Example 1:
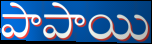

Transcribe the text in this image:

పాపాయి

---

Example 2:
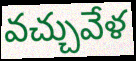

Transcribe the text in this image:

వచ్చువేళ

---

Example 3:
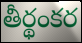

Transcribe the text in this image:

తీర్థంకర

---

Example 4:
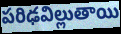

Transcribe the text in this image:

పరిఢవిల్లుతాయి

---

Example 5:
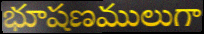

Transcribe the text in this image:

భూషణములుగా